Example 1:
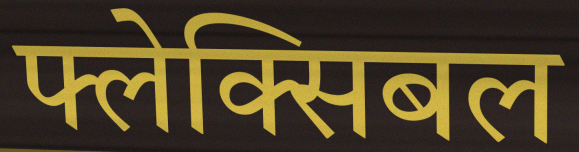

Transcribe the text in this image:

फ्लेक्सिबल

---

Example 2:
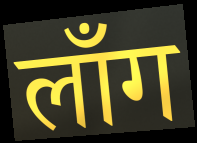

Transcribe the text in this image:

लाँग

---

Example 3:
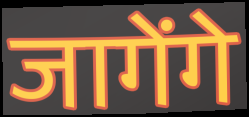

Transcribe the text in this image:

जागेंगे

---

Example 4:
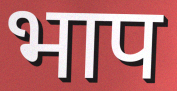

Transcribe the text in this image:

भाप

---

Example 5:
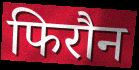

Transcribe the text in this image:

फिरौन